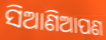
ସିଆଣିଆପଣ